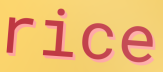
rice